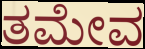
ತಮೇವ